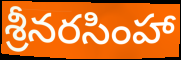
శ్రీనరసింహా